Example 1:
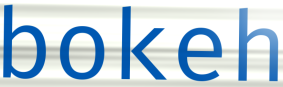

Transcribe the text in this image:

bokeh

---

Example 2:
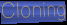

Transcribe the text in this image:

Cloning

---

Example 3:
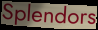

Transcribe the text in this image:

Splendors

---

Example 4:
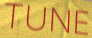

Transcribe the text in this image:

TUNE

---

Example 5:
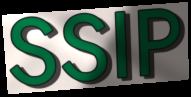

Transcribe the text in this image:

SSIP